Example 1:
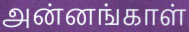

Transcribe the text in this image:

அன்னங்காள்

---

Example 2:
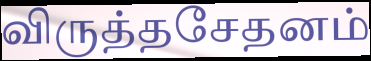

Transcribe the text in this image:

விருத்தசேதனம்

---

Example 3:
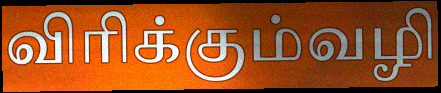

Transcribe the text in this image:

விரிக்கும்வழி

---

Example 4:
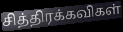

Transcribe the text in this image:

சித்திரக்கவிகள்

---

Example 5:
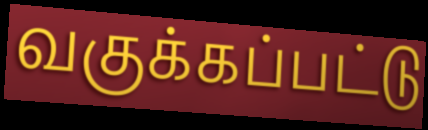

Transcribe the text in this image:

வகுக்கப்பட்டு